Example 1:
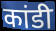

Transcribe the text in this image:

कांडी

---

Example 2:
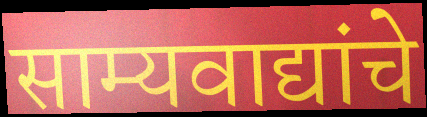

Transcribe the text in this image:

साम्यवाद्यांचे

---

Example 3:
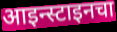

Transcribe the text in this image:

आइन्स्टाइनचा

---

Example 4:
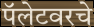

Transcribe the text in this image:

पॅलेटवरचे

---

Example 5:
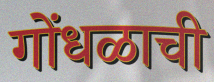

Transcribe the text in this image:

गोंधळाची